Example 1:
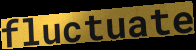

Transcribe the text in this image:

fluctuate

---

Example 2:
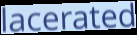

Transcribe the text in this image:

lacerated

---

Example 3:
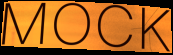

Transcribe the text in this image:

MOCK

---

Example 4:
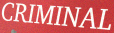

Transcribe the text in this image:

CRIMINAL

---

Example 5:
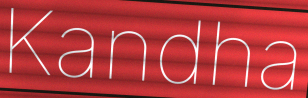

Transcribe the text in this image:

Kandha